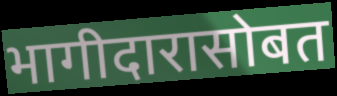
भागीदारासोबत